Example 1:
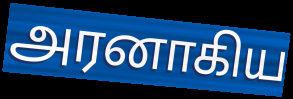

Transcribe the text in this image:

அரனாகிய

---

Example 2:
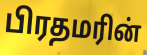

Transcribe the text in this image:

பிரதமரின்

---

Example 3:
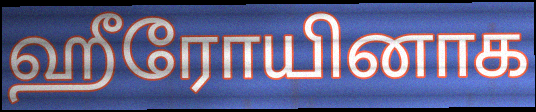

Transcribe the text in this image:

ஹீரோயினாக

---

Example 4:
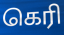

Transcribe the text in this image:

கெரி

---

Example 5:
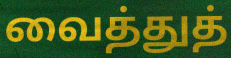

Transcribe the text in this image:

வைத்துத்